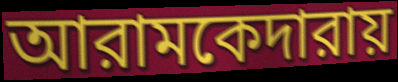
আরামকেদারায়